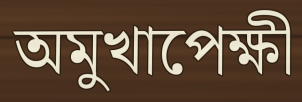
অমুখাপেক্ষী